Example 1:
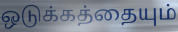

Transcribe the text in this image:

ஒடுக்கத்தையும்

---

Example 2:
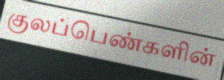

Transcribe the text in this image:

குலப்பெண்களின்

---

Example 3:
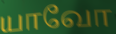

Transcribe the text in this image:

யாவோ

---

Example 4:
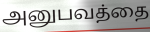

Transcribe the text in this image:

அனுபவத்தை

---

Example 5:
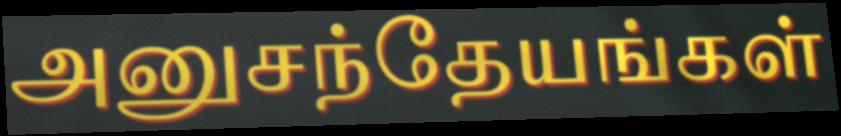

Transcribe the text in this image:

அனுசந்தேயங்கள்